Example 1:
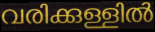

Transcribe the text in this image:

വരിക്കുള്ളിൽ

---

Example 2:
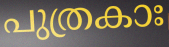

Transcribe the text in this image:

പുത്രകാഃ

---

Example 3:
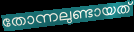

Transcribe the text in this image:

തോന്നലുണ്ടായത്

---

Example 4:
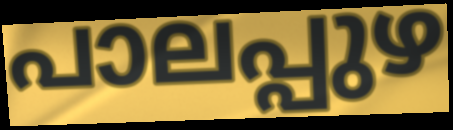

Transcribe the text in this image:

പാലപ്പുഴ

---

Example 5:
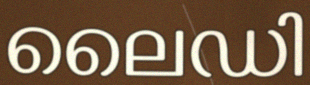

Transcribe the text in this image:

ലൈഡി